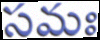
సమః